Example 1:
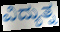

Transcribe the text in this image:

ವಿದ್ಯುತ್ನ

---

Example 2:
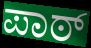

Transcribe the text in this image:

ಪಾಠ್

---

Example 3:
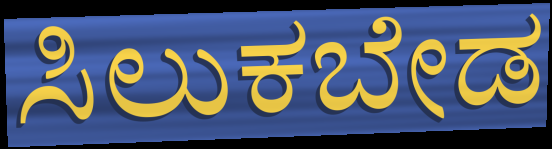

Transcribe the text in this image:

ಸಿಲುಕಬೇಡ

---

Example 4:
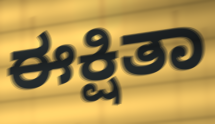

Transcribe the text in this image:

ಈಕ್ಷಿತಾ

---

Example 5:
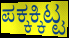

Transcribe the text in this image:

ಪಕ್ಕಕ್ಕಿಟ್ಟ